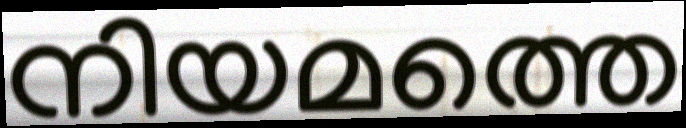
നിയമത്തെ